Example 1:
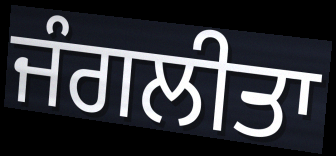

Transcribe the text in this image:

ਜੰਗਲੀਤਾ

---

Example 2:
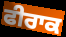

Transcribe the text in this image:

ਫੀਰਾਕ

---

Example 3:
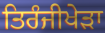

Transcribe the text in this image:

ਤਿਰੰਜੀਖੇੜਾ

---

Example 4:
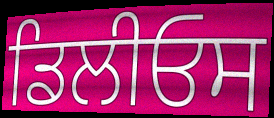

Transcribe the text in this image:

ਡਿਲੀਓਸ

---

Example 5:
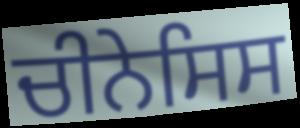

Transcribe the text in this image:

ਚੀਨੇਸਿਸ